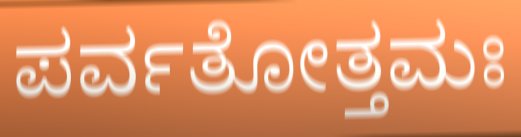
ಪರ್ವತೋತ್ತಮಃ